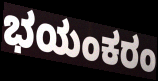
ಭಯಂಕರಂ